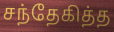
சந்தேகித்த